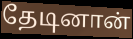
தேடினான்